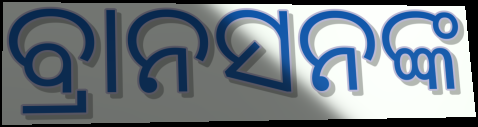
ବ୍ରାନସନଙ୍କ